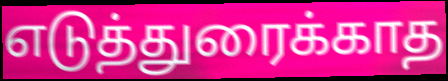
எடுத்துரைக்காத